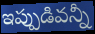
ఇప్పుడివన్నీ